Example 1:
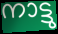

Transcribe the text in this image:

നാട്ടു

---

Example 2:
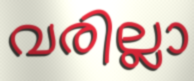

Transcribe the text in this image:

വരില്ലാ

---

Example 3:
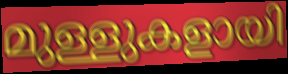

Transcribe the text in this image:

മുള്ളുകളായി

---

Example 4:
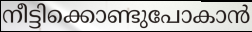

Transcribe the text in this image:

നീട്ടിക്കൊണ്ടുപോകാൻ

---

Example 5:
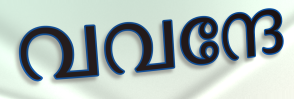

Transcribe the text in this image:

വവന്ദേ